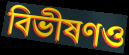
বিভীষণও